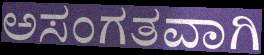
ಅಸಂಗತವಾಗಿ